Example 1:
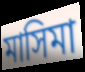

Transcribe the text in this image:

মাসিমা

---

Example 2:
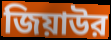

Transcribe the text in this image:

জিয়াউর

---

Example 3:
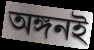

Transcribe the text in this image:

অঙ্গনই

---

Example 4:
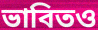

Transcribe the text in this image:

ভাবিতও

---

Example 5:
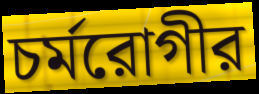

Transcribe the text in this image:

চর্মরোগীর